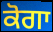
ਕੋਗਾ